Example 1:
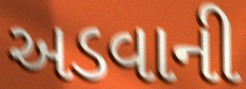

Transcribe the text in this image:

અડવાની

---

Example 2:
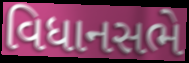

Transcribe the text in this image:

વિધાનસભે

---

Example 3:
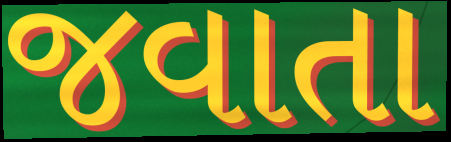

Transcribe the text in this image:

જવાતા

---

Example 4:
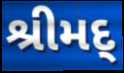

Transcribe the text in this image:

શ્રીમદ્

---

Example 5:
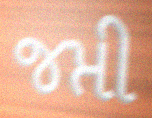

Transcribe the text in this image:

જપ્તી